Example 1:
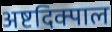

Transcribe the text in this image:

अष्टदिक्पाल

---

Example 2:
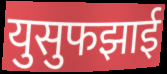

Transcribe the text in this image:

युसुफझाई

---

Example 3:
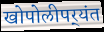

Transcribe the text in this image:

खोपोलीपर्यंत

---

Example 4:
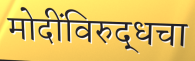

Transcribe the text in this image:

मोदींविरुद्धचा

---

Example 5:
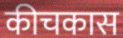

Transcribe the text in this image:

कीचकास